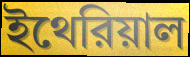
ইথেরিয়াল